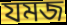
যমজ